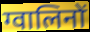
ग्वालिनों